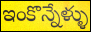
ఇంకొన్నేళ్ళు